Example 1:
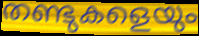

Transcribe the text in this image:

തണ്ടുകളെയും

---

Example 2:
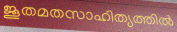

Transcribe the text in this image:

ജൂതമതസാഹിത്യത്തിൽ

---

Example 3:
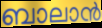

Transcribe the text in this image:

ബാലാൻ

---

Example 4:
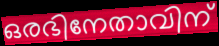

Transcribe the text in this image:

ഒരഭിനേതാവിന്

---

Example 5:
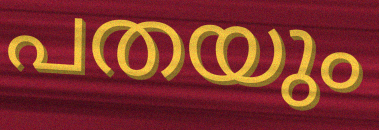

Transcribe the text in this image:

പതയും